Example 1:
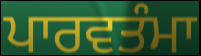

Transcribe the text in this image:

ਪਾਰਵਤੰਮਾ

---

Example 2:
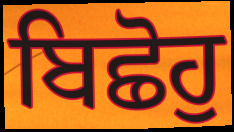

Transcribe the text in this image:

ਬਿਛੋਹੁ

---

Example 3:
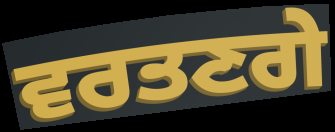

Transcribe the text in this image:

ਵਰਤਣਗੇ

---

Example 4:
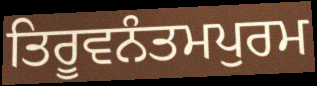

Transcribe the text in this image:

ਤਿਰੂਵਨੰਤਮਪੁਰਮ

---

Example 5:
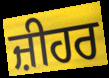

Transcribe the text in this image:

ਜ਼ੀਹਰ